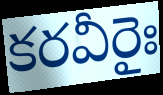
కరవీరైః